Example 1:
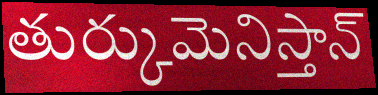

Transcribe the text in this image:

తుర్కుమెనిస్తాన్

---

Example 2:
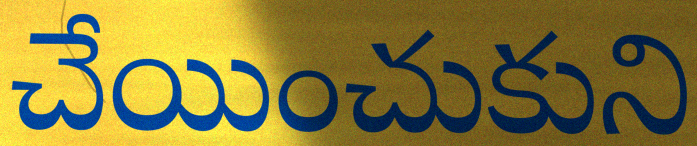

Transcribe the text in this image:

చేయించుకుని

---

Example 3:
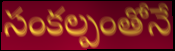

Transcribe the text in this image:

సంకల్పంతోనే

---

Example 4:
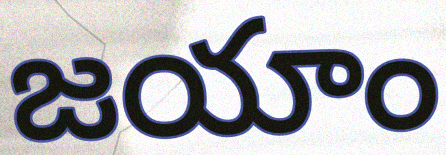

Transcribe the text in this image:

జయాం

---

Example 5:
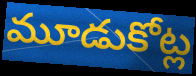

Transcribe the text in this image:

మూడుకోట్ల